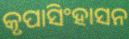
କୃପାସିଂହାସନ